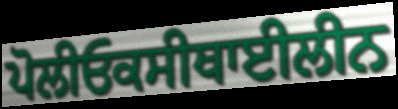
ਪੋਲੀਓਕਸੀਥਾਈਲੀਨ